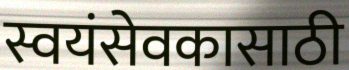
स्वयंसेवकासाठी